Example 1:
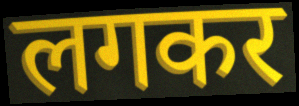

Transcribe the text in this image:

लगकर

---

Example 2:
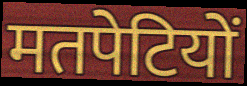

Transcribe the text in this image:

मतपेटियों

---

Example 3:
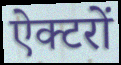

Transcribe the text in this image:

ऐक्टरों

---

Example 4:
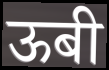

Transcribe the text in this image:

ऊबी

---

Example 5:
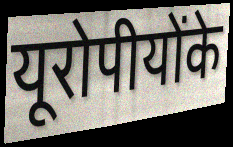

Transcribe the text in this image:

यूरोपीयोंके